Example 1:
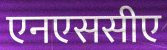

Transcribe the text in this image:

एनएससीए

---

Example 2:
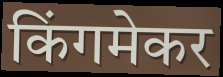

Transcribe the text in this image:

किंगमेकर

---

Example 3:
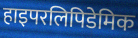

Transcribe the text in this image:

हाइपरलिपिडेमिक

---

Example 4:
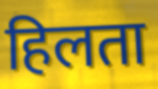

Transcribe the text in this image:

हिलता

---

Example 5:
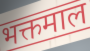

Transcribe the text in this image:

भक्तमाल